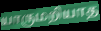
யாருமறியாத